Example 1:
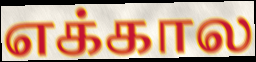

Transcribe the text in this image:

எக்கால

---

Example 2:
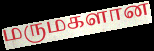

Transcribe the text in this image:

மருமகளான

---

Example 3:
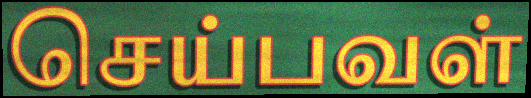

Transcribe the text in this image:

செய்பவள்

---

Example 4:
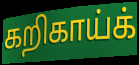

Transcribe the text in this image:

கறிகாய்க்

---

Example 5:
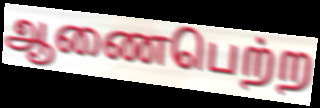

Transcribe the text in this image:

ஆணைபெற்ற